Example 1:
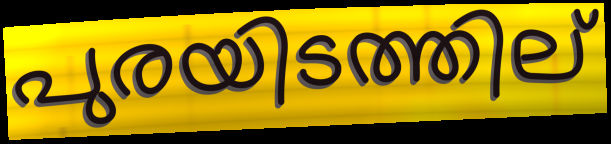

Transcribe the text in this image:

പുരയിടത്തില്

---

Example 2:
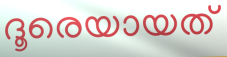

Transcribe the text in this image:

ദൂരെയായത്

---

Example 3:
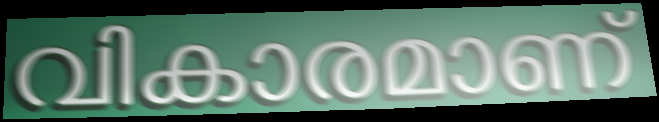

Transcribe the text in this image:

വികാരമാണ്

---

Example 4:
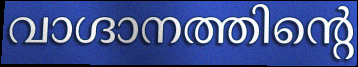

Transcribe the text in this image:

വാഗ്ദാനത്തിന്റെ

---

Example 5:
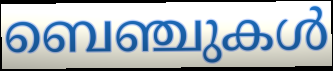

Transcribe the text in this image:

ബെഞ്ചുകൾ